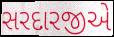
સરદારજીએ